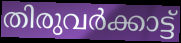
തിരുവർക്കാട്ട്